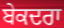
ਬੇਕਦਰਾ